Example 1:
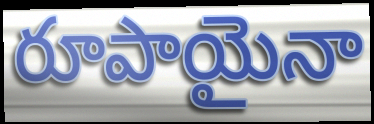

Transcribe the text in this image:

రూపాయైనా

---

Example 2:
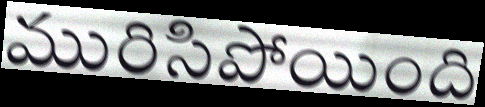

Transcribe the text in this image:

మురిసిపోయింది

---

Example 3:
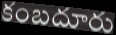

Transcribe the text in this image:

కంబదూరు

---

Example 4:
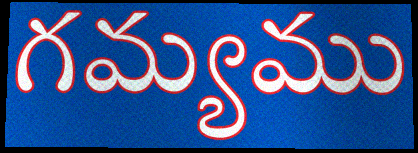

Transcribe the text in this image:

గమ్యము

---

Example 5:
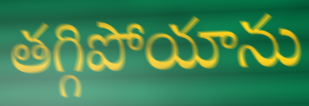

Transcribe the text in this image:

తగ్గిపోయాను